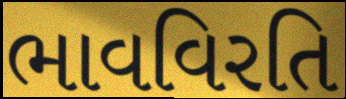
ભાવવિરતિ